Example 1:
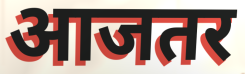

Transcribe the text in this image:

आजतर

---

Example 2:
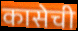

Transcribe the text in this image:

कासेची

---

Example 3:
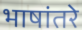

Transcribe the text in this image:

भाषांतरे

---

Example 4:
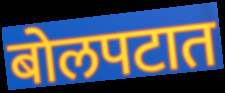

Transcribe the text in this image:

बोलपटात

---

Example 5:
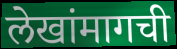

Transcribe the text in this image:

लेखांमागची